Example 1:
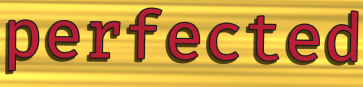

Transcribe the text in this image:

perfected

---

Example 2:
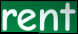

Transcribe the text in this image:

rent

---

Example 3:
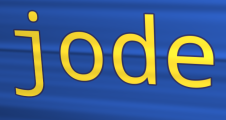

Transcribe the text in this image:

jode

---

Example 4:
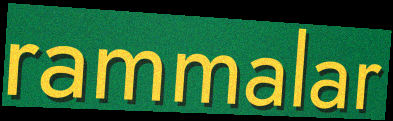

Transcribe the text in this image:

rammalar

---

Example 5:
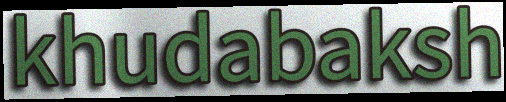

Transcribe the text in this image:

khudabaksh